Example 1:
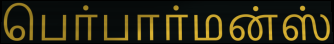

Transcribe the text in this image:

பெர்பார்மன்ஸ்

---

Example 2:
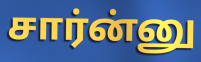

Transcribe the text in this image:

சார்ன்னு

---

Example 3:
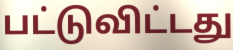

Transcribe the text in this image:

பட்டுவிட்டது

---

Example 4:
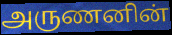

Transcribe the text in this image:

அருணனின்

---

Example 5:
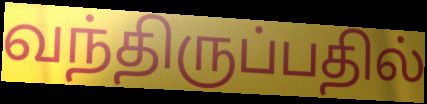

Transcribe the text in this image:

வந்திருப்பதில்